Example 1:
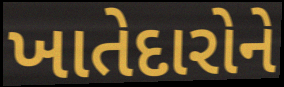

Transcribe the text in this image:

ખાતેદારોને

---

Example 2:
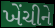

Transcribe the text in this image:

ખેંચીને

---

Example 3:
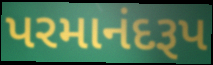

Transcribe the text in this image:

પરમાનંદરૂપ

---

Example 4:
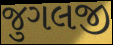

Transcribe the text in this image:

જુગલજી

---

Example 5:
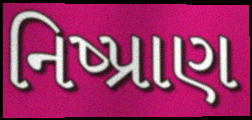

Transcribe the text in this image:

નિષ્પ્રાણ